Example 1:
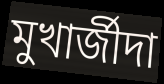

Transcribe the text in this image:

মুখার্জীদা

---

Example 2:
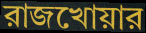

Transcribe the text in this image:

রাজখোয়ার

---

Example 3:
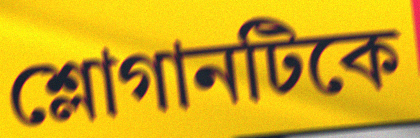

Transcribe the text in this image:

শ্লোগানটিকে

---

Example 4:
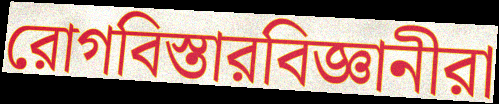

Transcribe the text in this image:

রোগবিস্তারবিজ্ঞানীরা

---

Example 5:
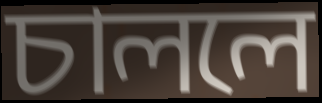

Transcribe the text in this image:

চাললে